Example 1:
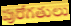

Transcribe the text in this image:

పురోగతులు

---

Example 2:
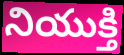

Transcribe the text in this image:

నియుక్తి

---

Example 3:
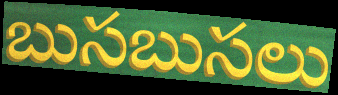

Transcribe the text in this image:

బుసబుసలు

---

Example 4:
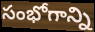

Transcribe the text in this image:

సంభోగాన్ని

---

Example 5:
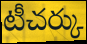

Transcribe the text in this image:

టీచర్కు